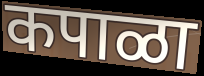
कपाळा